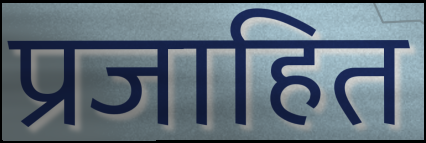
प्रजाहित